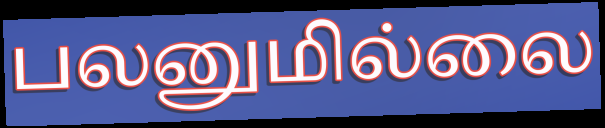
பலனுமில்லை